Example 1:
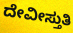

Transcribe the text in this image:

ದೇವೀಸ್ತುತಿ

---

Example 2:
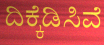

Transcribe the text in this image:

ದಿಕ್ಕೆಡಿಸಿವೆ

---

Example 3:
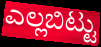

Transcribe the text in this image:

ಎಲ್ಲಬಿಟ್ಟು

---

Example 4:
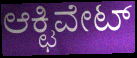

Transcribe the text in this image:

ಆಕ್ಟಿವೇಟ್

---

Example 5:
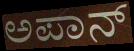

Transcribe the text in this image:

ಅಪಾನ್